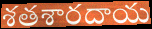
శతశారదాయ